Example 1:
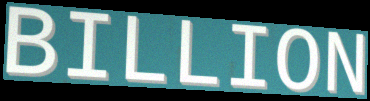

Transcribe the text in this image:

BILLION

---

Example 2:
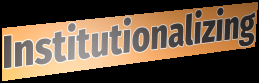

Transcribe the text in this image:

Institutionalizing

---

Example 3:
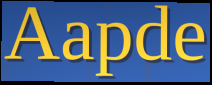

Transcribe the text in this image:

Aapde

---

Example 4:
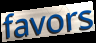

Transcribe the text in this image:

favors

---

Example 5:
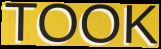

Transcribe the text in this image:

TOOK